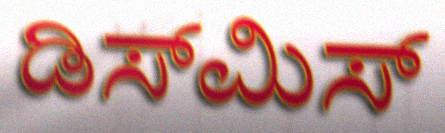
ಡಿಸ್‌ಮಿಸ್